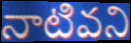
నాటివని